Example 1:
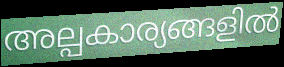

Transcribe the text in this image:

അല്പകാര്യങ്ങളിൽ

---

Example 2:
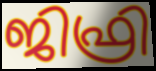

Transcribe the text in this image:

ജിഫ്രി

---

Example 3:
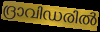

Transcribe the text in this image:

ദ്രാവിഡരിൽ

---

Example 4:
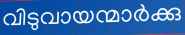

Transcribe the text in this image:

വിടുവായന്മാർക്കു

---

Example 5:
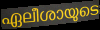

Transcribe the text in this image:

ഏലീശായുടെ